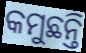
କମୁଛନ୍ତି